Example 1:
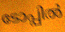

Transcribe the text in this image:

ടോപ്പിൽ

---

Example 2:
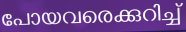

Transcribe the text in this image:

പോയവരെക്കുറിച്ച്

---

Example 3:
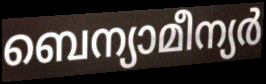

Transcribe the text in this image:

ബെന്യാമീന്യർ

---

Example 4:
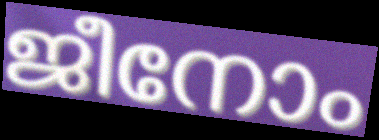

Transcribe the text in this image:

ജീനോം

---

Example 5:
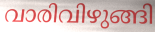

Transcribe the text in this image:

വാരിവിഴുങ്ങി